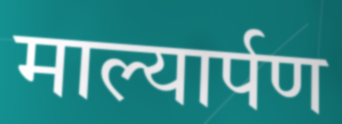
माल्यार्पण